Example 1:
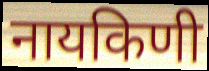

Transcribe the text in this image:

नायकिणी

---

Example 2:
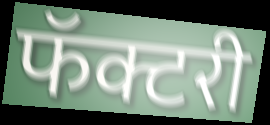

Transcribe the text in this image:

फॅक्टरी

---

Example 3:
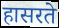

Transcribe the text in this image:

हासरते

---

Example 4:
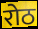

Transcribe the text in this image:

रोठ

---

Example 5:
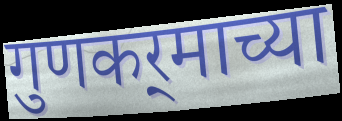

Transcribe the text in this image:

गुणकर्माच्या